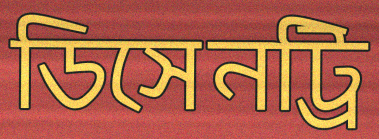
ডিসেনট্রি